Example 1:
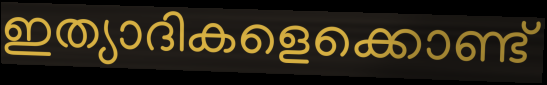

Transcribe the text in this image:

ഇത്യാദികളെക്കൊണ്ട്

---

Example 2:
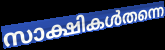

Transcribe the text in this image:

സാക്ഷികൾതന്നെ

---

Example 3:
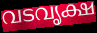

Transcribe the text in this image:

വടവൃക്ഷ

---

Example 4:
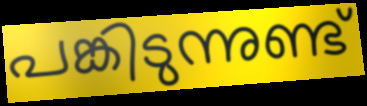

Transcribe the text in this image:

പങ്കിടുന്നുണ്ട്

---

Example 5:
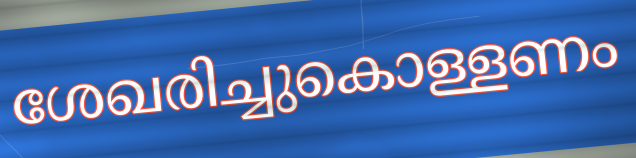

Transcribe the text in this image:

ശേഖരിച്ചുകൊള്ളണം